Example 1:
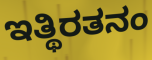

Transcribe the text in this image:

ಇತ್ಥಿರತನಂ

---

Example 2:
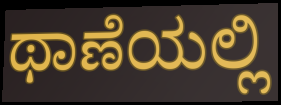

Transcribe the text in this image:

ಥಾಣೆಯಲ್ಲಿ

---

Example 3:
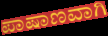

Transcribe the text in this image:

ಪಾಷಾಣವಾಗಿ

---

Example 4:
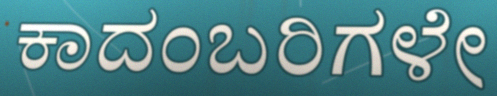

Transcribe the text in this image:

ಕಾದಂಬರಿಗಳೇ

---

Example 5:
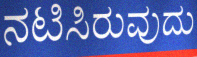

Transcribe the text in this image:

ನಟಿಸಿರುವುದು